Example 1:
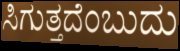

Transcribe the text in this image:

ಸಿಗುತ್ತದೆಂಬುದು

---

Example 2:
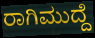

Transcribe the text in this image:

ರಾಗಿಮುದ್ದೆ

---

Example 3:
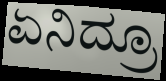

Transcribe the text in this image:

ಏನಿದ್ರೂ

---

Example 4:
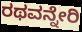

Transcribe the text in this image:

ರಥವನ್ನೇರಿ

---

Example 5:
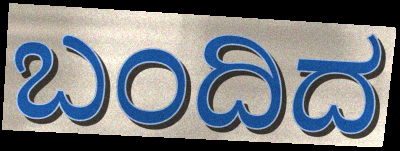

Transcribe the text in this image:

ಬಂದಿದ